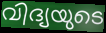
വിദ്യയുടെ